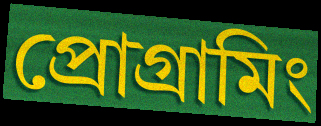
প্রোগ্রামিং